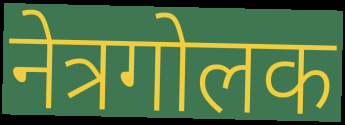
नेत्रगोलक